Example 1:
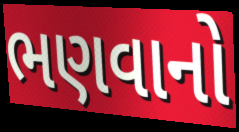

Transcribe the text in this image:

ભણવાનો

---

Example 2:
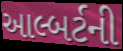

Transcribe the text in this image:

આલ્બર્ટની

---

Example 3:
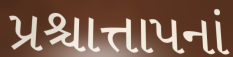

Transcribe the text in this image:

પ્રશ્ચાત્તાપનાં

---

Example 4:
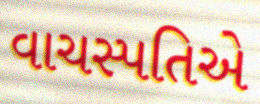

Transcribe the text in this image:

વાચસ્પતિએ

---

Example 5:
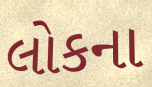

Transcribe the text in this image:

લોકના